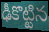
ఢీకొట్టిన